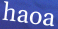
haoa